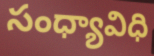
సంధ్యావిధి